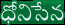
ధోనిసేన